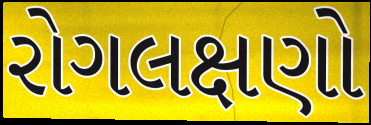
રોગલક્ષણો